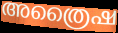
അത്രൈഷ